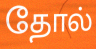
தோல்